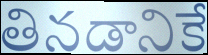
తినడానికే